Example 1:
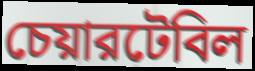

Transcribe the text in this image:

চেয়ারটেবিল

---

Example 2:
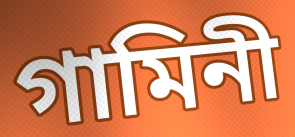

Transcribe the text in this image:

গামিনী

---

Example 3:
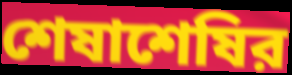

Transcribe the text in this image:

শেষাশেষির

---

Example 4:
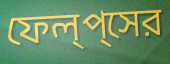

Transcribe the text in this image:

ফেল্‌প্‌সের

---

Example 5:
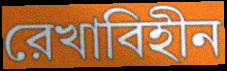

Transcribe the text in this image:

রেখাবিহীন